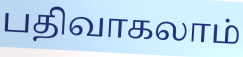
பதிவாகலாம்